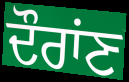
ਦੌਰਾਂਣ